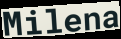
Milena